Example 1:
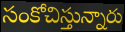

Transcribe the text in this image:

సంకోచిస్తున్నారు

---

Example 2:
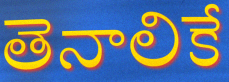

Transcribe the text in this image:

తెనాలికే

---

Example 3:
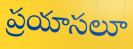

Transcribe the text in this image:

ప్రయాసలూ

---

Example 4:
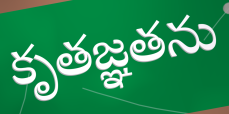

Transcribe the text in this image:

కృతజ్ఞతను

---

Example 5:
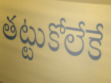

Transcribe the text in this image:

తట్టుకోలేకే